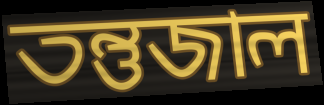
তন্তুজাল